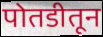
पोतडीतून